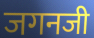
जगनजी